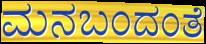
ಮನಬಂದಂತೆ